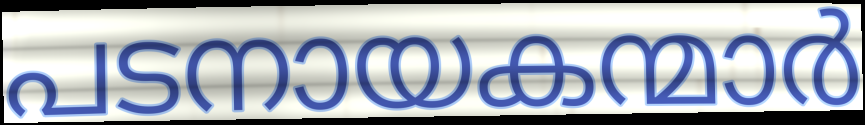
പടനായകന്മാർ